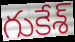
గుకేశ్